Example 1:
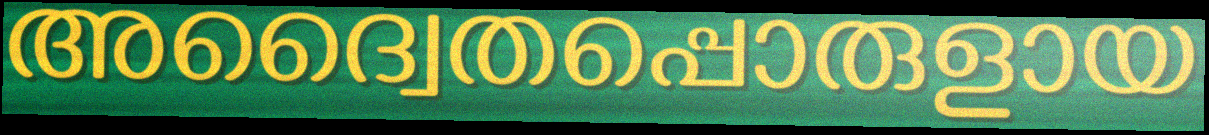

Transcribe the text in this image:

അദ്വൈതപ്പൊരുളായ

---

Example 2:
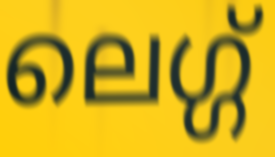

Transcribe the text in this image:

ലെഗ്ഗ്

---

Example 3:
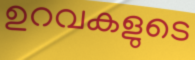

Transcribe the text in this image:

ഉറവകളുടെ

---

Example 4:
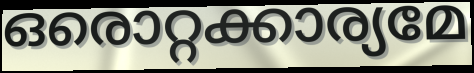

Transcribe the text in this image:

ഒരൊറ്റക്കാര്യമേ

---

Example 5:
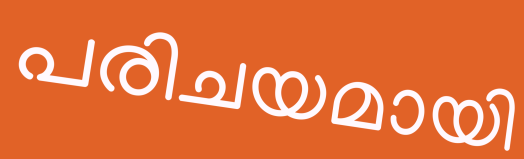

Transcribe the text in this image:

പരിചയമായി